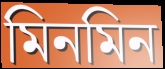
মিনমিন